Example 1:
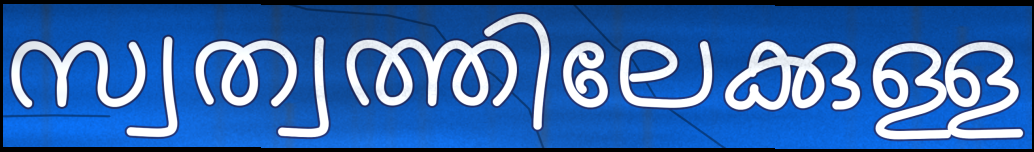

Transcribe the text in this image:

സ്വത്വത്തിലേക്കുള്ള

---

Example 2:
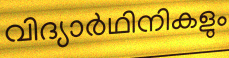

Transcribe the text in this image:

വിദ്യാർഥിനികളും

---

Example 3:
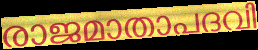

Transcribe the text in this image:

രാജമാതാപദവി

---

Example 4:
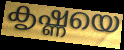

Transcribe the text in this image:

കൃഷ്ണയെ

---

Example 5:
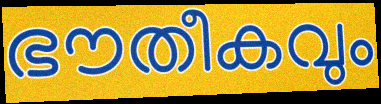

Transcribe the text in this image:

ഭൗതീകവും